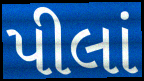
પીલાં